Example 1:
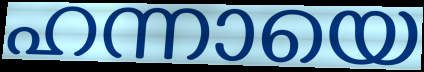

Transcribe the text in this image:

ഹന്നായെ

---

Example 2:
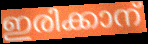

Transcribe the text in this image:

ഇരിക്കാന്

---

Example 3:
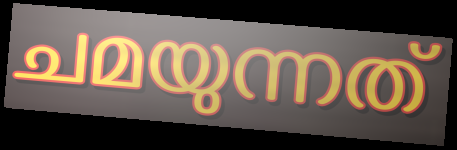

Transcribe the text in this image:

ചമയുന്നത്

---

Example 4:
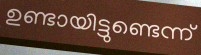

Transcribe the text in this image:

ഉണ്ടായിട്ടുണ്ടെന്ന്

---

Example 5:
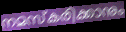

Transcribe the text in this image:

നമസ്കരിക്കാനും